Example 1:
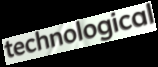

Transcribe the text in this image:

technological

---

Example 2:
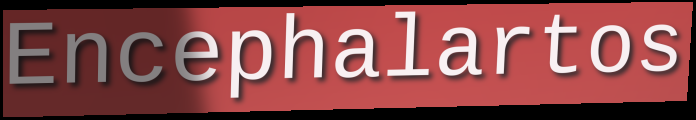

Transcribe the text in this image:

Encephalartos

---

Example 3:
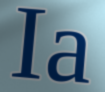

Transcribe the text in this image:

Ia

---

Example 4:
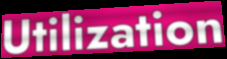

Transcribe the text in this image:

Utilization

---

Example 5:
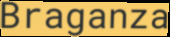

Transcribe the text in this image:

Braganza